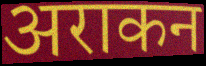
अराकन